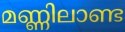
മണ്ണിലാണ്ട